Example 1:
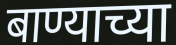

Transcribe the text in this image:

बाण्याच्या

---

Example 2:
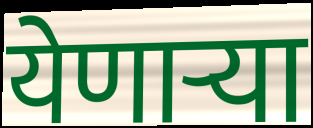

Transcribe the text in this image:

येणार्‍या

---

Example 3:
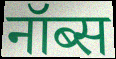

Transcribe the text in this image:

नॉब्स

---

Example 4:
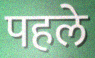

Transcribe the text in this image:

पहले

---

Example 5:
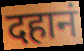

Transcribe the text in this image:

दहानं